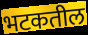
भटकतील